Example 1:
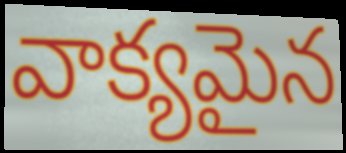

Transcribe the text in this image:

వాక్యమైన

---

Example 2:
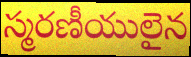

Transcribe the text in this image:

స్మరణీయులైన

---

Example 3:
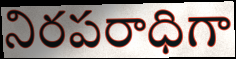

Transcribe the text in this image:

నిరపరాధిగా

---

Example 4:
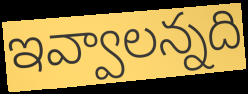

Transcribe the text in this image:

ఇవ్వాలన్నది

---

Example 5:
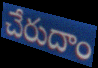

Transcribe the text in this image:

చేరుదాం